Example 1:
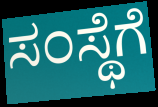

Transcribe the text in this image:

ಸಂಸ್ಥೆಗೆ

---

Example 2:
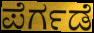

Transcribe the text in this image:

ಪೆರ್ಗಡೆ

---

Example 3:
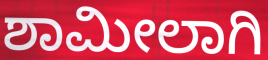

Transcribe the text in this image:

ಶಾಮೀಲಾಗಿ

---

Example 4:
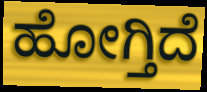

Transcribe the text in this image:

ಹೋಗ್ತಿದೆ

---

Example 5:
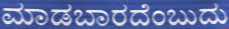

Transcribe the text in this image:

ಮಾಡಬಾರದೆಂಬುದು